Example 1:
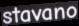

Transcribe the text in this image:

stavano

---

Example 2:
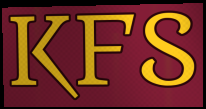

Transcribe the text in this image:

KFS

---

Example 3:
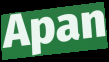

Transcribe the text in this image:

Apan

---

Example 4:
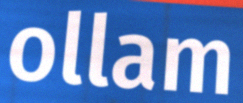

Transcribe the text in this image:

ollam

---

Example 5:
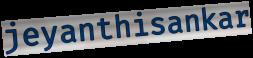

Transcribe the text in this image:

jeyanthisankar